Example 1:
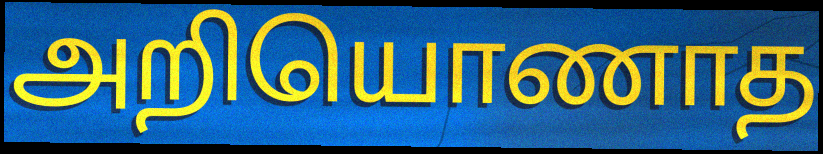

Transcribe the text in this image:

அறியொணாத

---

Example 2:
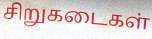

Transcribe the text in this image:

சிறுகடைகள்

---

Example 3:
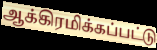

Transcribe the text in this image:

ஆக்கிரமிக்கப்பட்டு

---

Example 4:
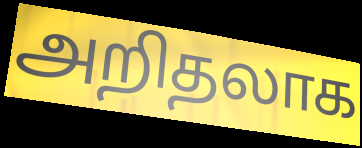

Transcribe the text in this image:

அறிதலாக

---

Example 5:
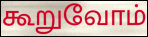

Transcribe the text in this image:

கூறுவோம்